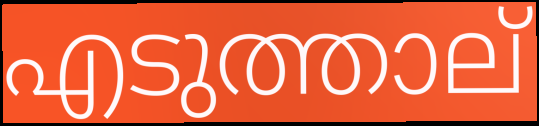
എടുത്താല്